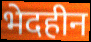
भेदहीन